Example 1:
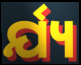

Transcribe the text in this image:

ର୍ଯ୍ୟ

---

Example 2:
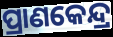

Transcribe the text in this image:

ପ୍ରାଣକେନ୍ଦ୍ର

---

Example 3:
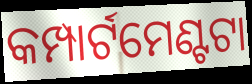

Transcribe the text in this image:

କମ୍ପାର୍ଟମେଣ୍ଟଟା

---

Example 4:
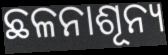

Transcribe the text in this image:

ଛଳନାଶୂନ୍ୟ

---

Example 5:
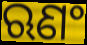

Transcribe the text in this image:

ଋଣଂ